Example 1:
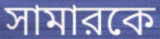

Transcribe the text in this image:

সামারকে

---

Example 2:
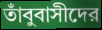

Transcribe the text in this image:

তাঁবুবাসীদের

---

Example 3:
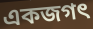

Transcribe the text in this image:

একজগৎ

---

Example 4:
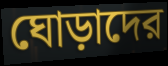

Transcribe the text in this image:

ঘোড়াদের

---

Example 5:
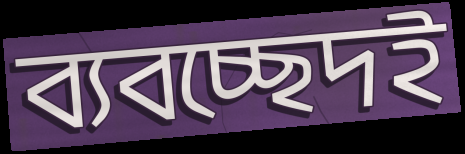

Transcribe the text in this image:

ব্যবচ্ছেদই